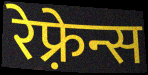
रेफ़्रेन्स